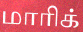
மாரிக்